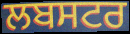
ਲਬਸਟਰ